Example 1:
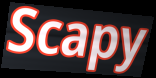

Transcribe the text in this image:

Scapy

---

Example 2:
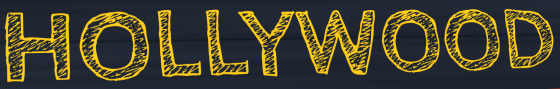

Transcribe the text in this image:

HOLLYWOOD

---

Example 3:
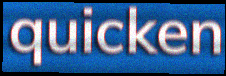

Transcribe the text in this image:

quicken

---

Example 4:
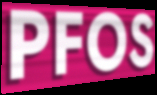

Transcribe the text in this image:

PFOS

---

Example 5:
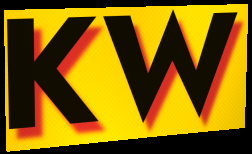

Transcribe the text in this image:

KW